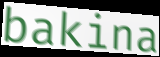
bakina